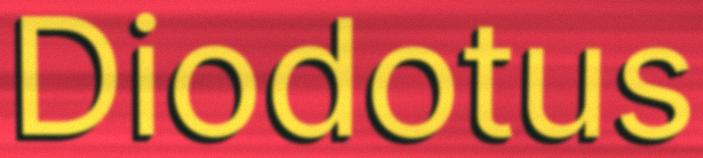
Diodotus